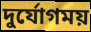
দুর্যোগময়